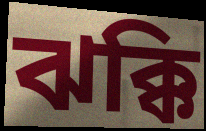
ঝক্কি